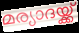
മര്യാദയ്ക്ക്